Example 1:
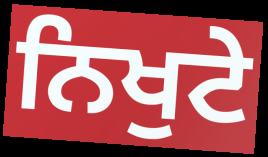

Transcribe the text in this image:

ਨਿਖੁਟੇ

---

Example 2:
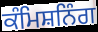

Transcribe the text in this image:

ਕੰਮਿਸ਼ਨਿੰਗ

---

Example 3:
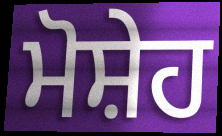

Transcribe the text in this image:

ਮੋਸ਼ੇਹ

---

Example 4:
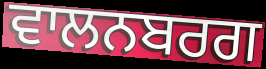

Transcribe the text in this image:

ਵਾਲਨਬਰਗ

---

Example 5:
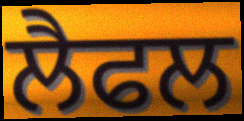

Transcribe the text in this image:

ਲੈਫਲ